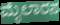
ಮೈಲಾರನ